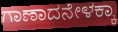
ಗಾಣಾದನೇಳಕ್ಕಾ